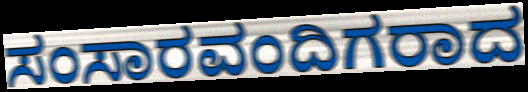
ಸಂಸಾರವಂದಿಗರಾದ